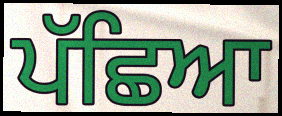
ਪੱਛਿਆ